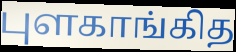
புளகாங்கித